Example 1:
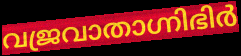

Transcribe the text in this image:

വജ്രവാതാഗ്നിഭിർ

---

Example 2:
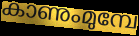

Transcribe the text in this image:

കാണുംമുമ്പേ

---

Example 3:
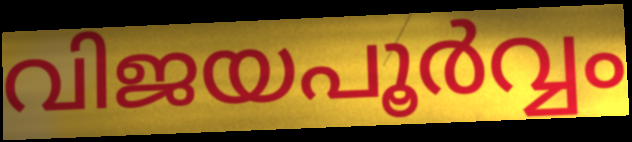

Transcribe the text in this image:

വിജയപൂർവ്വം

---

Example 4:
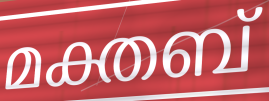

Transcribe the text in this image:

മക്തബ്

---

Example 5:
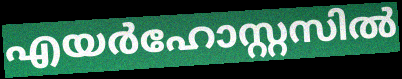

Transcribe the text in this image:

എയർഹോസ്റ്റസിൽ